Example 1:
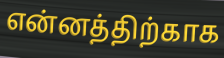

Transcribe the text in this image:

என்னத்திற்காக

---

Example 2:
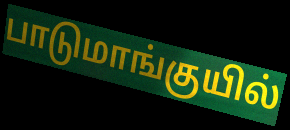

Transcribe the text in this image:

பாடுமாங்குயில்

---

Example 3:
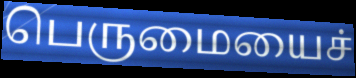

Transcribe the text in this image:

பெருமையைச்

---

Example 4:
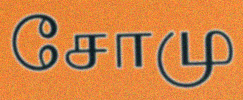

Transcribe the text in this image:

சோமு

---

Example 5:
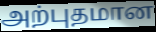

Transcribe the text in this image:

அற்புதமான